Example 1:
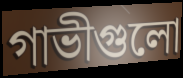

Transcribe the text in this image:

গাভীগুলো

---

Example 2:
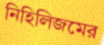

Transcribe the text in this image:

নিহিলিজমের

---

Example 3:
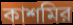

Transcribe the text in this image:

কাশমির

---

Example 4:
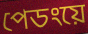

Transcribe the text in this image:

পেডংয়ে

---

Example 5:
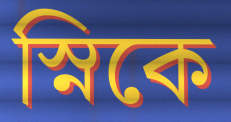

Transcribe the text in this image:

স্নিকে